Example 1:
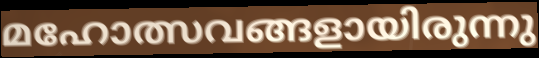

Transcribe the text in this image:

മഹോത്സവങ്ങളായിരുന്നു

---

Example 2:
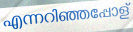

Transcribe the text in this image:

എന്നറിഞ്ഞപ്പോള്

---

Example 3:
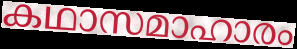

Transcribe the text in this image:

കഥാസമാഹാരം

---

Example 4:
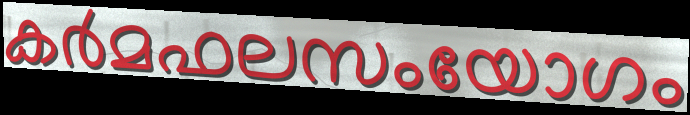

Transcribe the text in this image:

കർമഫലസംയോഗം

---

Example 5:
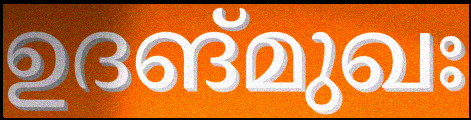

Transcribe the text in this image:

ഉദങ്മുഖഃ